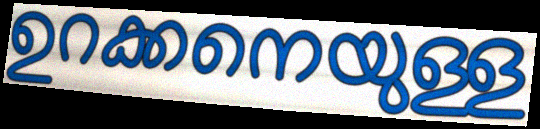
ഉറക്കനെയുള്ള